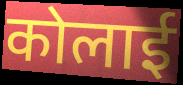
कोलाई